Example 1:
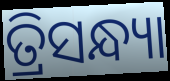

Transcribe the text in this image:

ତ୍ରିସନ୍ଧ୍ୟା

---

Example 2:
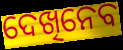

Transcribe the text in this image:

ଦେଖିନେବ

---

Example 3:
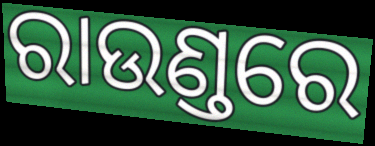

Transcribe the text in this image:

ରାଉଣ୍ଡରେ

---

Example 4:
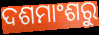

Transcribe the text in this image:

ଦଶମାଂଶରୁ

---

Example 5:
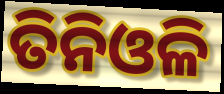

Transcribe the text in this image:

ତିନିଓଳି